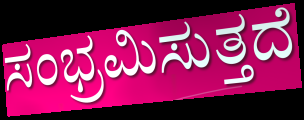
ಸಂಭ್ರಮಿಸುತ್ತದೆ